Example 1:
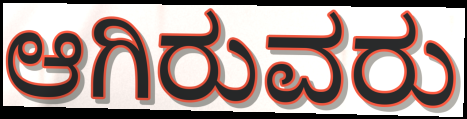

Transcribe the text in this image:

ಆಗಿರುವರು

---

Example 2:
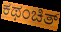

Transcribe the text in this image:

ಕಥಂಚಿತ್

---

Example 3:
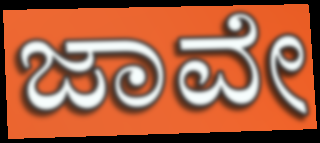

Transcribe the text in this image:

ಜಾವೇ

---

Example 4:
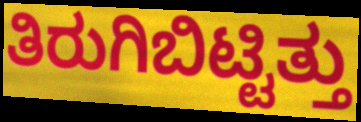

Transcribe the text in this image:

ತಿರುಗಿಬಿಟ್ಟಿತ್ತು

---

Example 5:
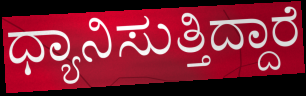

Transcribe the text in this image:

ಧ್ಯಾನಿಸುತ್ತಿದ್ದಾರೆ